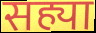
सह्या